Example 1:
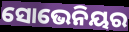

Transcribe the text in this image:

ସୋଭେନିୟର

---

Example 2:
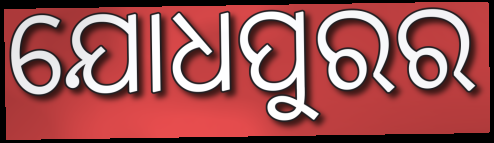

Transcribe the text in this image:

ଯୋଧପୁରର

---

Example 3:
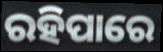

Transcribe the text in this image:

ରହିପାରେ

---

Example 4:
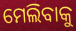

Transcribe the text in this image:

ମେଲିବାକୁ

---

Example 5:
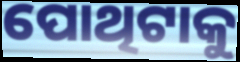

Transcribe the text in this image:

ପୋଥିଟାକୁ